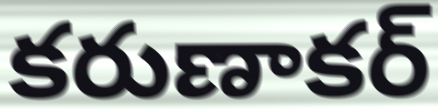
కరుణాకర్